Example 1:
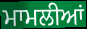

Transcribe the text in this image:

ਮਾਮਲੀਆਂ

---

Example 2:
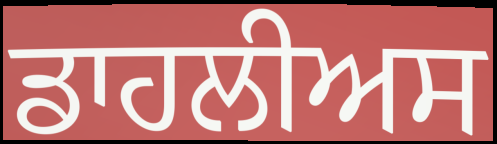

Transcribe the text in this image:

ਡਾਹਲੀਅਸ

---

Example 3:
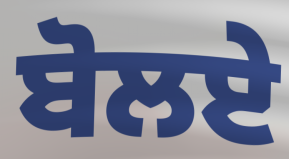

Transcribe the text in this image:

ਬੋਲਏ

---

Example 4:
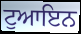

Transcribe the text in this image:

ਟੁਆਇਨ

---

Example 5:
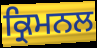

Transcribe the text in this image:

ਕ੍ਰਿਮਨਲ